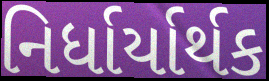
નિર્ધાર્યાર્થક